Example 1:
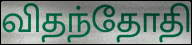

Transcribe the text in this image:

விதந்தோதி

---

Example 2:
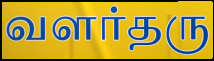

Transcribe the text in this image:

வளர்தரு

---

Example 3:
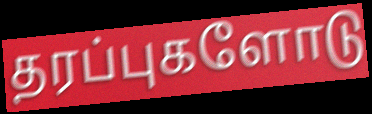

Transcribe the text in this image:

தரப்புகளோடு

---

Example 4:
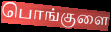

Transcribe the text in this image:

பொங்குளை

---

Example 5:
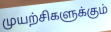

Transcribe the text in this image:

முயற்சிகளுக்கும்